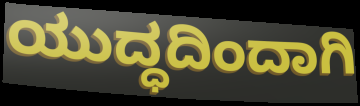
ಯುದ್ಧದಿಂದಾಗಿ